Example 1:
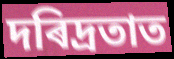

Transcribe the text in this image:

দৰিদ্ৰতাত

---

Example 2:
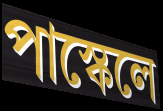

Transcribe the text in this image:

পাস্কেলে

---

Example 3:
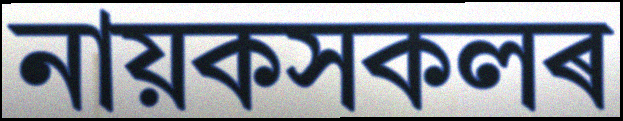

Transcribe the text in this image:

নায়কসকলৰ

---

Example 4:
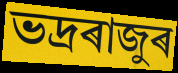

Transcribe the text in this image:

ভদ্ৰৰাজুৰ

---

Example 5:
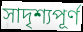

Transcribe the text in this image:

সাদৃশ্যপূৰ্ণ